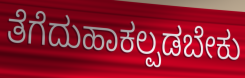
ತೆಗೆದುಹಾಕಲ್ಪಡಬೇಕು